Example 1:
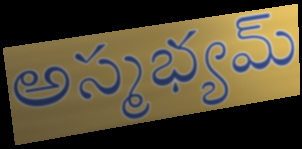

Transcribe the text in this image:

అస్మభ్యమ్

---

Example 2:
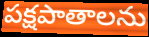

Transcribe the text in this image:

పక్షపాతాలను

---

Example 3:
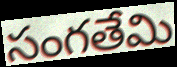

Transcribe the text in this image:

సంగతేమి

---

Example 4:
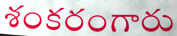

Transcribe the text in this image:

శంకరంగారు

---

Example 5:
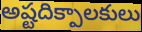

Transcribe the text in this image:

అష్టదిక్పాలకులు